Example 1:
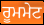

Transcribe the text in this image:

ਰੂਮਮੇਟ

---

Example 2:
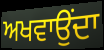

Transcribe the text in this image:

ਅਖਵਾਉਂਦਾ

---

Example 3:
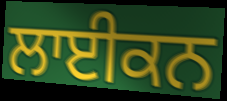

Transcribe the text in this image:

ਲਾਈਕਨ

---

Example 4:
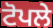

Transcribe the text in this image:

ਟੋਪਲੇ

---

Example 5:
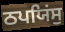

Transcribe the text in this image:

ਠਪਯਿਂਸੁ